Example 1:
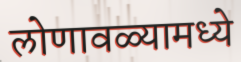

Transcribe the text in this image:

लोणावळ्यामध्ये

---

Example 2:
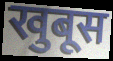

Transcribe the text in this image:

खुबूस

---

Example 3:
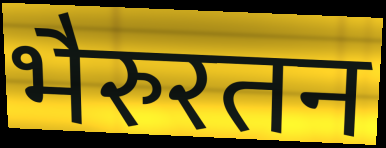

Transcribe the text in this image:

भैरुरतन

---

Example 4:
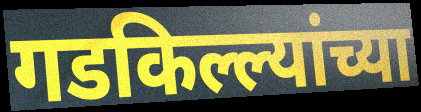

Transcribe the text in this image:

गडकिल्ल्यांच्या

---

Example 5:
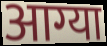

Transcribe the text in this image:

आग्या